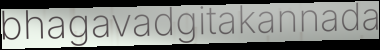
bhagavadgitakannada